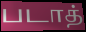
படாத்